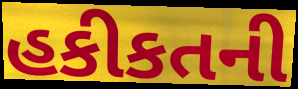
હકીકતની